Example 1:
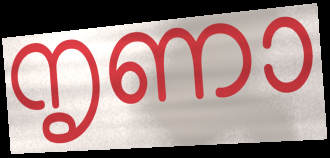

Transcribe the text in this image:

നൃണാ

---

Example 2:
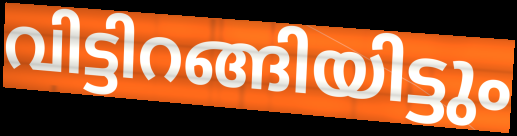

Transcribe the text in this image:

വിട്ടിറങ്ങിയിട്ടും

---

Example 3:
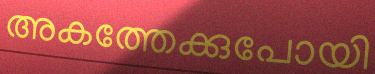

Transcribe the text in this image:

അകത്തേക്കുപോയി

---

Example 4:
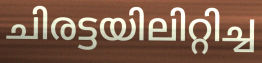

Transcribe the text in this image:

ചിരട്ടയിലിറ്റിച്ച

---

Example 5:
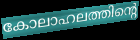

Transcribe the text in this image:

കോലാഹലത്തിന്റെ